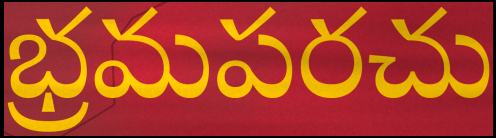
భ్రమపరచు